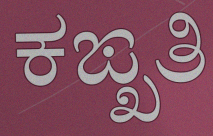
ಕಙ್ಖತಿ